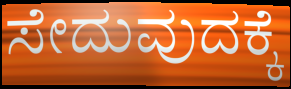
ಸೇದುವುದಕ್ಕೆ